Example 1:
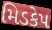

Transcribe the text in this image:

મિડકેપ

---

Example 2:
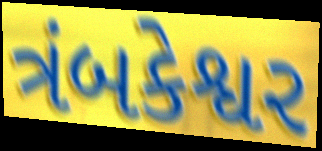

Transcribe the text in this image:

ત્રંબકેશ્વર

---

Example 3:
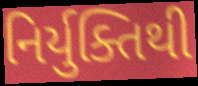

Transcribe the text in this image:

નિર્યુક્તિથી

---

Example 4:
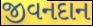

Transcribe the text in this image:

જીવનદાન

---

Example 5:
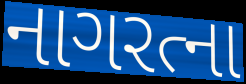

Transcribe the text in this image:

નાગરત્ના